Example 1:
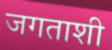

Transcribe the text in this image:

जगताशी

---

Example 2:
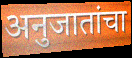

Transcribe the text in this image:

अनुजातांचा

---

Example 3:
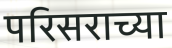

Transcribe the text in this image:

परिसराच्या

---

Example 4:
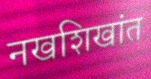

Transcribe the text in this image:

नखशिखांत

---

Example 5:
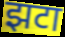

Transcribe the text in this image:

झटा